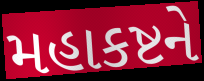
મહાકષ્ટને